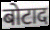
बोटाद